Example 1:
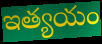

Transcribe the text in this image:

ఇత్యయం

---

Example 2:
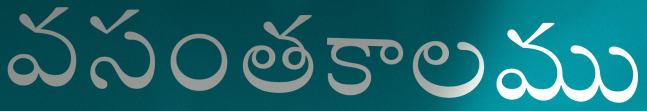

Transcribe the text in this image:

వసంతకాలము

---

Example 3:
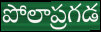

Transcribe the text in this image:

పోలాప్రగడ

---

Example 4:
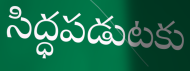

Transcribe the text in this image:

సిద్ధపడుటకు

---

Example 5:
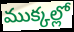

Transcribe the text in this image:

ముక్కల్లో